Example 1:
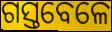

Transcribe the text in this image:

ଗସ୍ତବେଳେ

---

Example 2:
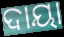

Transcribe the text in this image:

ଦାୟା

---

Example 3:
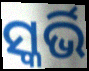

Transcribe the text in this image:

ସ୍କର୍ଭି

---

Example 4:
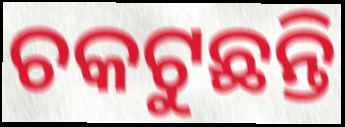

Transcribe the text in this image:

ଚକଟୁଛନ୍ତି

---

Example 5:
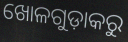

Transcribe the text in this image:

ଖୋଳଗୁଡ଼ାକରୁ